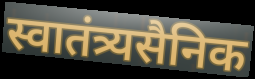
स्वातंत्र्यसैनिक